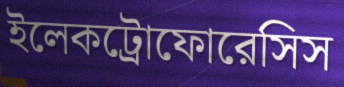
ইলেকট্রোফোরেসিস